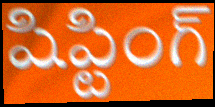
షిప్టింగ్